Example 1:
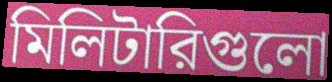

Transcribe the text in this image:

মিলিটারিগুলো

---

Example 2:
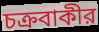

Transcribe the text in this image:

চক্রবাকীর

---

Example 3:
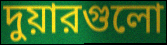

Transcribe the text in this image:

দুয়ারগুলো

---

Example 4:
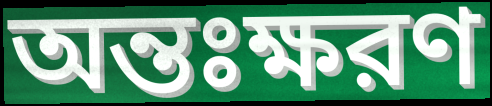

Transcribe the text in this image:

অন্তঃক্ষরণ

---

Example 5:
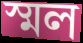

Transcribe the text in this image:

স্মল